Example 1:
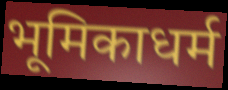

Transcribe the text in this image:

भूमिकाधर्म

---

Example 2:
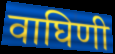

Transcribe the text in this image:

वाघिणी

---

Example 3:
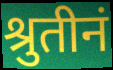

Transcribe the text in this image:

श्रुतीनं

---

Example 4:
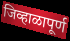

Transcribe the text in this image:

जिव्हाळापूर्ण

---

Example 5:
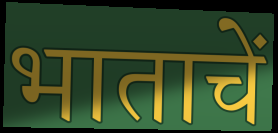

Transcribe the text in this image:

भाताचें